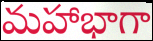
మహాభాగా